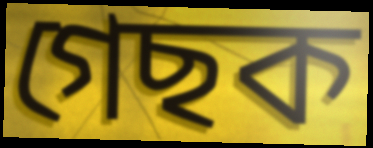
গেছক